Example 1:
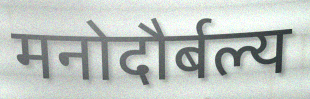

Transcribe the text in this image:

मनोदौर्बल्य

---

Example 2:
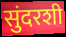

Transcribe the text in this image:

सुंदरशी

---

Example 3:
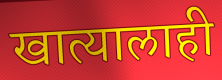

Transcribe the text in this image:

खात्यालाही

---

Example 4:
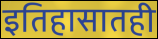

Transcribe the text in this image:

इतिहासातही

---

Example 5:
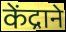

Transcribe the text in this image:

केंद्राने